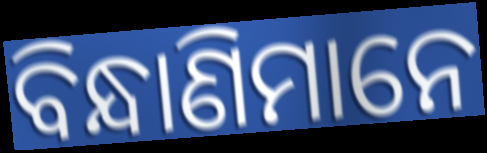
ବିନ୍ଧାଣିମାନେ